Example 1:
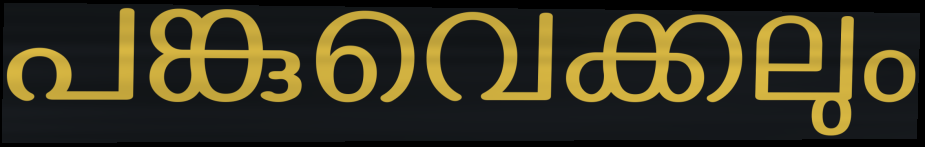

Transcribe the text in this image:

പങ്കുവെക്കലും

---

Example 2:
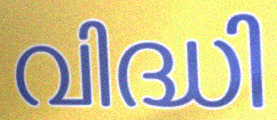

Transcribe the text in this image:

വിദ്ധി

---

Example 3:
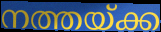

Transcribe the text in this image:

നത്തയ്ക്ക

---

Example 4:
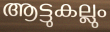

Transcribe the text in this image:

ആട്ടുകല്ലും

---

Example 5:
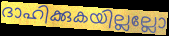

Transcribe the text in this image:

ദാഹിക്കുകയില്ലല്ലോ